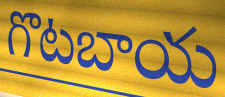
గొటబాయ